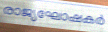
രാജ്യഘോഷകർ